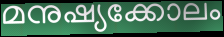
മനുഷ്യക്കോലം